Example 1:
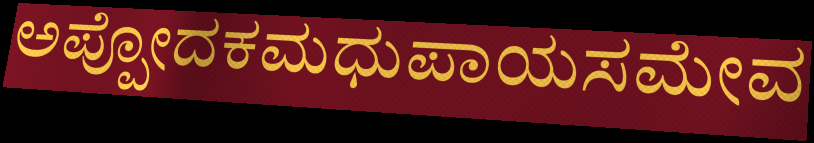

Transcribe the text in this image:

ಅಪ್ಪೋದಕಮಧುಪಾಯಸಮೇವ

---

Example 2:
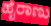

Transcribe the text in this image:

ಹೈರಾಣು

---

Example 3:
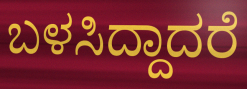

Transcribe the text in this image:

ಬಳಸಿದ್ದಾದರೆ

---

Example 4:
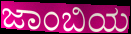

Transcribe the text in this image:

ಜಾಂಬಿಯ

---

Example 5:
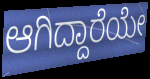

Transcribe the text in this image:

ಆಗಿದ್ದಾರೆಯೇ